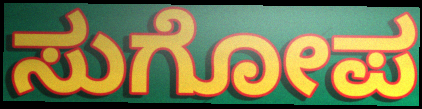
ಸುಗೋಪ